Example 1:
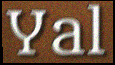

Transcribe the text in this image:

Yal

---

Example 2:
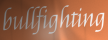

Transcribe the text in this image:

bullfighting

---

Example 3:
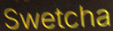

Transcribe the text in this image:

Swetcha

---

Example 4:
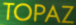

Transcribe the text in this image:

TOPAZ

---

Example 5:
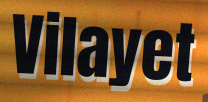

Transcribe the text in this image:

Vilayet